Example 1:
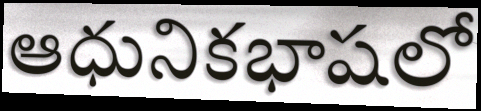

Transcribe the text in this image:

ఆధునికభాషలో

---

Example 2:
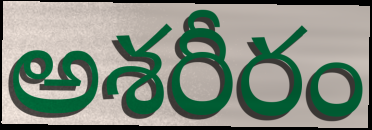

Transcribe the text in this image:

అశరీరం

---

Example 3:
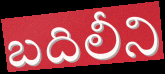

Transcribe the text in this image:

బదిలీని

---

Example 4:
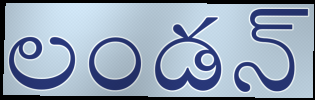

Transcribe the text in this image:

లండన్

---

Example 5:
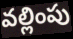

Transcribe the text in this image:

వల్లింపు